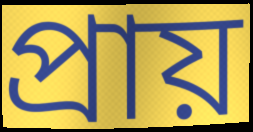
প্রায়